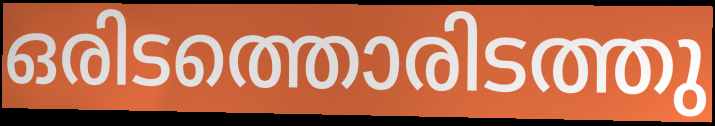
ഒരിടത്തൊരിടത്തു